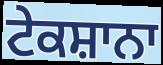
ਟੇਕਸ਼ਾਨਾ